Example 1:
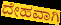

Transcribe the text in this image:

ದೇಹವಾಗಿ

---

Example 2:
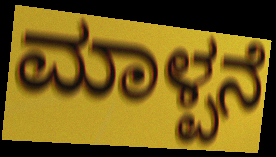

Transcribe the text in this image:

ಮಾಳ್ಪನೆ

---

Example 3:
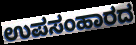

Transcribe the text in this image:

ಉಪಸಂಹಾರದ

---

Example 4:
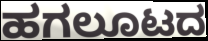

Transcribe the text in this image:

ಹಗಲೂಟದ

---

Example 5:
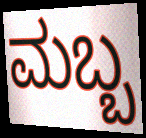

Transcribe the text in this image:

ಮಬ್ಬ